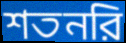
শতনরি